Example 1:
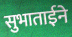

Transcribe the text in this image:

सुभाताईने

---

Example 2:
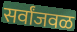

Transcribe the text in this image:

सर्वांजवळ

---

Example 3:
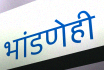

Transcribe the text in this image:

भांडणेही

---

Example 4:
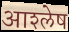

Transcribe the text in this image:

आश्लेष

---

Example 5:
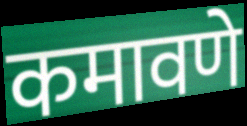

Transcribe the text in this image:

कमावणे